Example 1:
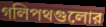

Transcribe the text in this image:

গলিপথগুলোর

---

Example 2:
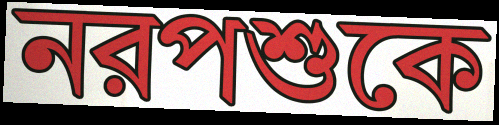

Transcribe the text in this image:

নরপশুকে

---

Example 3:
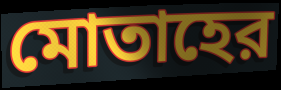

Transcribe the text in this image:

মোতাহের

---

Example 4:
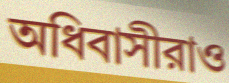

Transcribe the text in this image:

অধিবাসীরাও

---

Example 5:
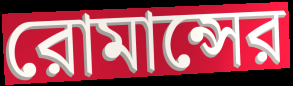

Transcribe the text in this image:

রোমান্সের